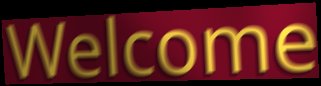
Welcome